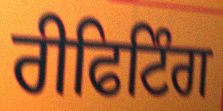
ਰੀਫਿਟਿੰਗ